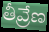
తీవ్రేణ